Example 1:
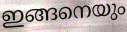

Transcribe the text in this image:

ഇങ്ങനെയും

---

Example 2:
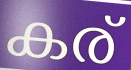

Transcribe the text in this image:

കര്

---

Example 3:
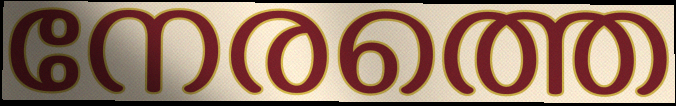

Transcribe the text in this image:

നേരത്തെ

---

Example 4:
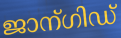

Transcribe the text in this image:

ജാന്ഗിഡ്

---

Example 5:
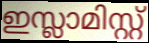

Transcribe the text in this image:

ഇസ്ലാമിസ്റ്റ്